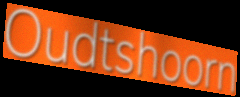
Oudtshoorn